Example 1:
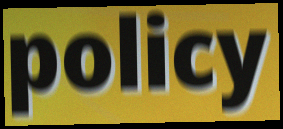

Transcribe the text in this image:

policy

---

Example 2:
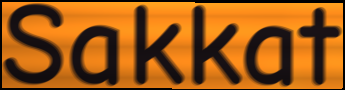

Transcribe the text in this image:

Sakkat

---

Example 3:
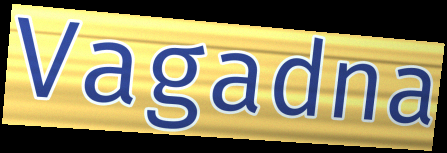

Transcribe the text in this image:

Vagadna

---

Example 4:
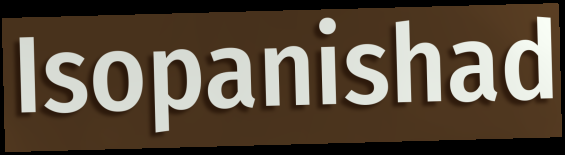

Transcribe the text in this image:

Isopanishad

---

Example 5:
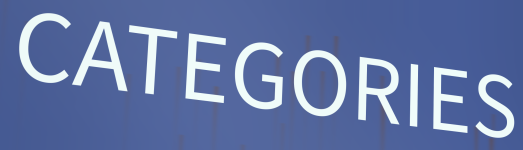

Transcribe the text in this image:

CATEGORIES